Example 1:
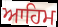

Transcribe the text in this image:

ਆਹਿਮ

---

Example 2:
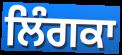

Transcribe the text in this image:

ਲਿੰਗਕਾ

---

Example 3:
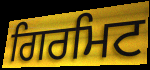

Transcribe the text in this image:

ਗਿਰਮਿਟ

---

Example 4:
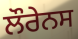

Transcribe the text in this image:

ਲੌਰੇਨਸ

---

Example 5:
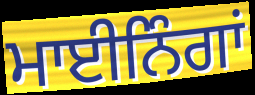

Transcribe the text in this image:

ਮਾਈਨਿੰਗਾਂ